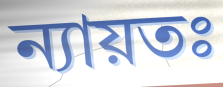
ন্যায়তঃ